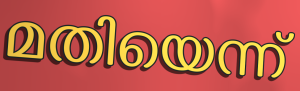
മതിയെന്ന്